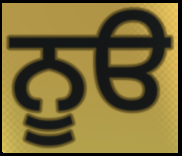
ਨੂੳ